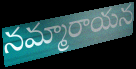
నమ్మారాయన